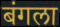
बंगला